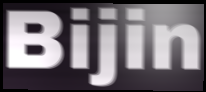
Bijin